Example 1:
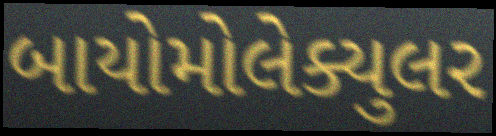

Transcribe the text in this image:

બાયોમોલેક્યુલર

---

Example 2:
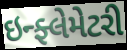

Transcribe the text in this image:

ઇન્ફ્લેમેટરી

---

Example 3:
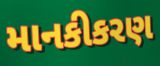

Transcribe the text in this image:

માનકીકરણ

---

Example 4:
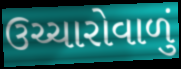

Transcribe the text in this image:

ઉચ્ચારોવાળું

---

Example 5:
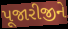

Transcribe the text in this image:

પૂજારીજીને